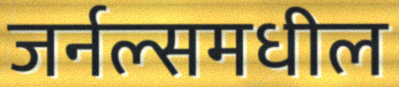
जर्नल्समधील